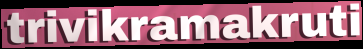
trivikramakruti